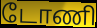
டோணி